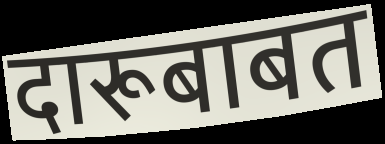
दारूबाबत